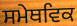
ਸਮੇਥਵਿਕ